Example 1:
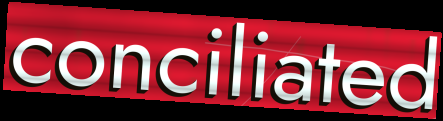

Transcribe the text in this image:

conciliated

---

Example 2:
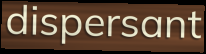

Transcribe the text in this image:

dispersant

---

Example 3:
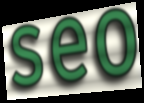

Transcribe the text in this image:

seo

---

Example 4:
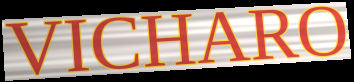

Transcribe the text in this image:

VICHARO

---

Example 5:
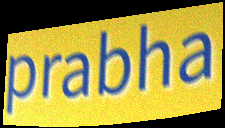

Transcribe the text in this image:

prabha